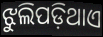
ଝୁଲିପଡ଼ିଥାଏ